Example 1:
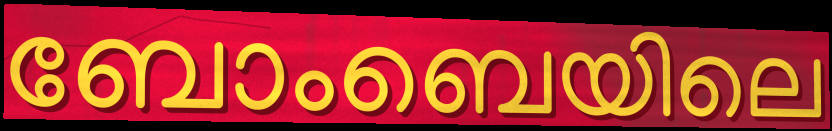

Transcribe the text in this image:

ബോംബെയിലെ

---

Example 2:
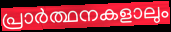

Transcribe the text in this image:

പ്രാർത്ഥനകളാലും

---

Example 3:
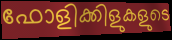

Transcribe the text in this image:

ഫോളിക്കിളുകളുടെ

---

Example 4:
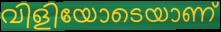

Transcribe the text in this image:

വിളിയോടെയാണ്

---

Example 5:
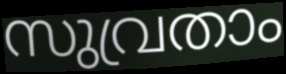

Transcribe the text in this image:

സുവ്രതാം